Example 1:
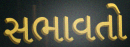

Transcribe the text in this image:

સભાવતો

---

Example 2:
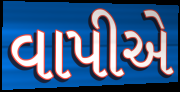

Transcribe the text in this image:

વાપીએ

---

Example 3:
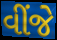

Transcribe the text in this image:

વીંજે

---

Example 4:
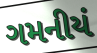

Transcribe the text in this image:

ગમનીયં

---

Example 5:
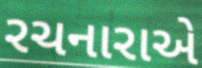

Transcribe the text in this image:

રચનારાએ